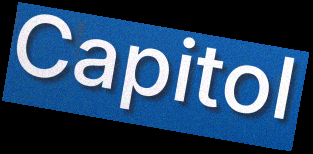
Capitol